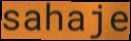
sahaje